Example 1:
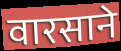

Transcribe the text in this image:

वारसाने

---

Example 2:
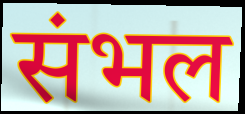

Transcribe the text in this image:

संभल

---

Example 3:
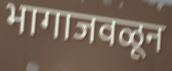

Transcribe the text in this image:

भागाजवळून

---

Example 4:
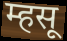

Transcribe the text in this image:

म्हसू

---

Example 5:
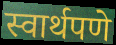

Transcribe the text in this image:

स्वार्थपणे